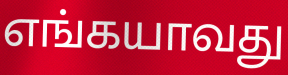
எங்கயாவது